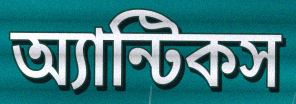
অ্যান্টিকস